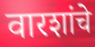
वारशांचे